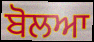
ਬੋਲਆ